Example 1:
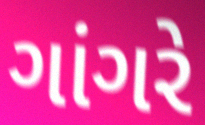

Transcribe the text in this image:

ગાંગરે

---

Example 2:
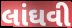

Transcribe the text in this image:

લાંઘવી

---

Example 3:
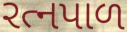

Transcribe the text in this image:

રત્નપાળ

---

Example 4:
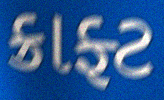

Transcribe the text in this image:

ક્રાફ્ટ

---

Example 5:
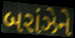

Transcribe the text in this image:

બરાંઝેને